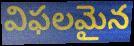
విఫలమైన